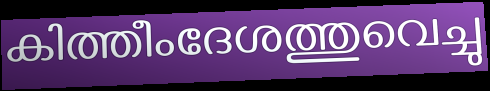
കിത്തീംദേശത്തുവെച്ചു